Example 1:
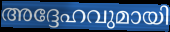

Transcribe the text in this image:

അദ്ദേഹവുമായി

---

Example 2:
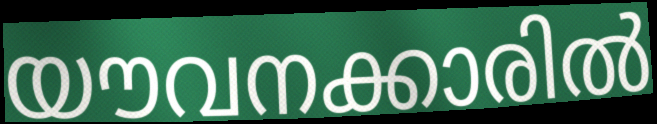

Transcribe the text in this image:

യൗവനക്കാരിൽ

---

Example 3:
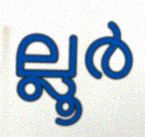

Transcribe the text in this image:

ല്ലൂർ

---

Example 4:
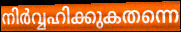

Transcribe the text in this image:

നിർവ്വഹിക്കുകതന്നെ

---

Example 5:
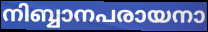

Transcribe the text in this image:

നിബ്ബാനപരായനാ